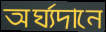
অর্ঘ্যদানে